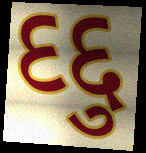
દદ્દુ